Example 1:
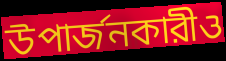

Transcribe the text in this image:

উপার্জনকারীও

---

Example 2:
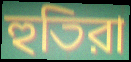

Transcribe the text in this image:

হুতিরা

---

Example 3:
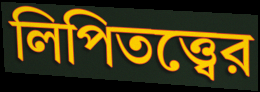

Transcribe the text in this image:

লিপিতত্ত্বের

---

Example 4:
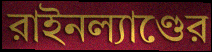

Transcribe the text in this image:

রাইনল্যাণ্ডের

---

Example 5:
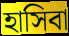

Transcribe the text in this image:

হাসিবা